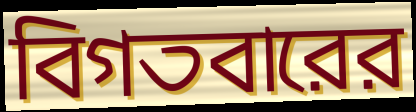
বিগতবারের